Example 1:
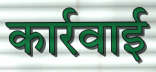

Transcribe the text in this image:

कार्रवाई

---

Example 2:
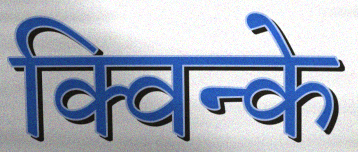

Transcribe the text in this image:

क्विन्के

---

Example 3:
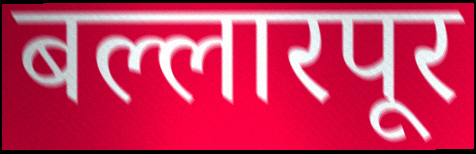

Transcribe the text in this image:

बल्लारपूर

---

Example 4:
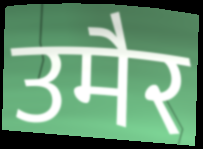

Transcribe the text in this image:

उमैर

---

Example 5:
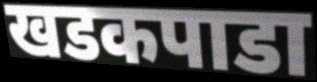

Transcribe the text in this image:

खडकपाडा